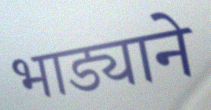
भाड्याने